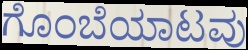
ಗೊಂಬೆಯಾಟವು